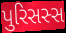
પુરિસસ્સ